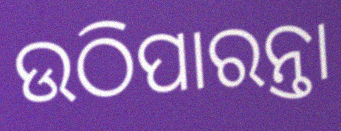
ଉଠିପାରନ୍ତା